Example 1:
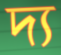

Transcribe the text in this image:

দ্য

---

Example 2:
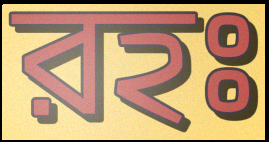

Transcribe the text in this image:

রহঃ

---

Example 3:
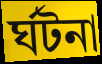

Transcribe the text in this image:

র্ঘটনা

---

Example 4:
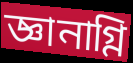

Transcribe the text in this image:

জ্ঞানাগ্নি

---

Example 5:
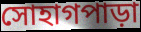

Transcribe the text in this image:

সোহাগপাড়া